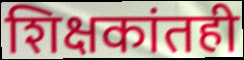
शिक्षकांतही